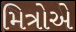
મિત્રોએ